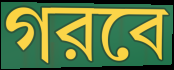
গরবে